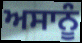
ਅਸਾਨੂੰ